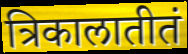
त्रिकालातीतं